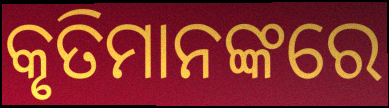
କୃତିମାନଙ୍କରେ